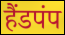
हैंडपंप